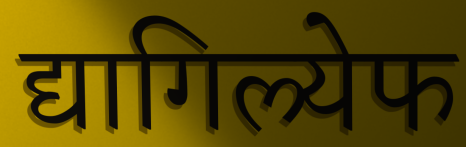
द्यागिल्येफ